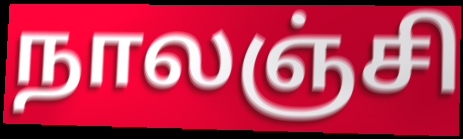
நாலஞ்சி